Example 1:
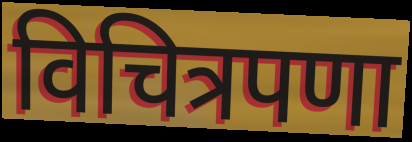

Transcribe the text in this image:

विचित्रपणा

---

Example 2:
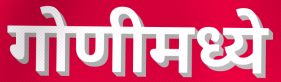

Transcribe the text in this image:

गोणीमध्ये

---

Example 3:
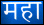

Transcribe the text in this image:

महा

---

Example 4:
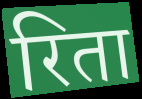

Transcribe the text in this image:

रिता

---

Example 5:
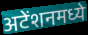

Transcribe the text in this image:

अटेंशनमध्ये